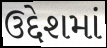
ઉદ્દેશમાં